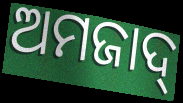
ଅମଜାଦ୍